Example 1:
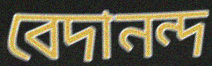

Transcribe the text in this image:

বেদানন্দ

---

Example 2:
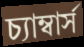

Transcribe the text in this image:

চ্যাম্বার্স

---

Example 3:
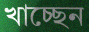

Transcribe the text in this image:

খাচ্ছেন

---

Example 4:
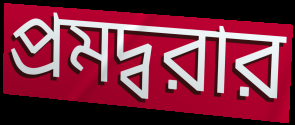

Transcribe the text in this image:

প্রমদ্বরার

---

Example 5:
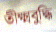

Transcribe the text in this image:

তীক্ষ্মবুদ্ধি